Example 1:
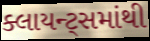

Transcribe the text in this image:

ક્લાયન્ટ્સમાંથી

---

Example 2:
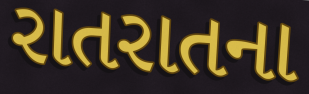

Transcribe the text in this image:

રાતરાતના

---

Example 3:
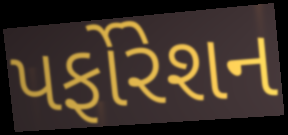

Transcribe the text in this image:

પર્ફોરેશન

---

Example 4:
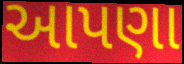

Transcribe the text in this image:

આપણા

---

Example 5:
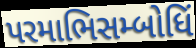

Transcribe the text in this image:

પરમાભિસમ્બોધિં